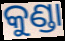
କୁଣ୍ଡା